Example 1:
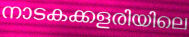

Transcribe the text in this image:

നാടകക്കളരിയിലെ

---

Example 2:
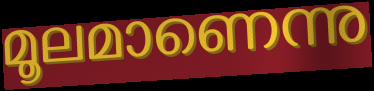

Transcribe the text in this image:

മൂലമാണെന്നു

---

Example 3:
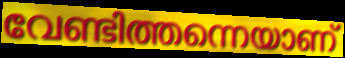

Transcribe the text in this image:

വേണ്ടിത്തന്നെയാണ്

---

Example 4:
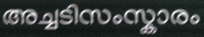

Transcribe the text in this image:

അച്ചടിസംസ്കാരം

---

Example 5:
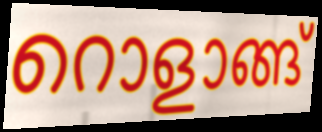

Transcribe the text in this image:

റൊളാങ്ങ്